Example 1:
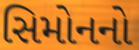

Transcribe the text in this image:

સિમોનનો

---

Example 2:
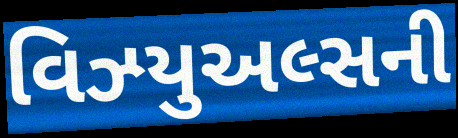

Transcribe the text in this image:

વિઝ્યુઅલ્સની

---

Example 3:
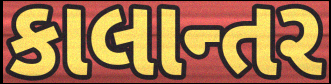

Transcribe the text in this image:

કાલાન્તર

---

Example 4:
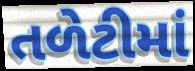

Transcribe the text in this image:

તળેટીમાં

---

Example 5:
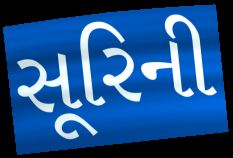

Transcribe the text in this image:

સૂરિની